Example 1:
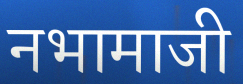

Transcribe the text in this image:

नभामाजी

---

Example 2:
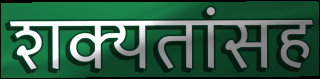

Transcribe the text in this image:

शक्यतांसह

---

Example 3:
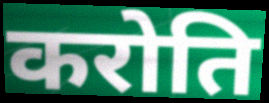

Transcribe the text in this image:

करोति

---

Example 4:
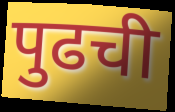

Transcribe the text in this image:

पुढची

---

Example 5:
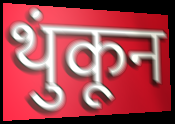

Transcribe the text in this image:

थुंकून